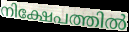
നിക്ഷേപത്തിൽ